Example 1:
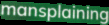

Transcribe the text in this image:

mansplaining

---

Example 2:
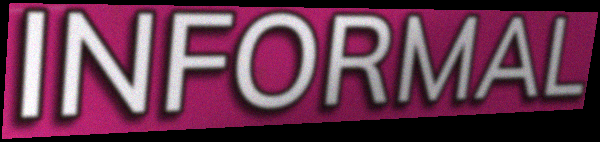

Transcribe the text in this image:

INFORMAL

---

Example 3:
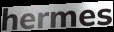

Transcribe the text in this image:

hermes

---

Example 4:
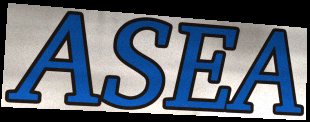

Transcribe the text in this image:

ASEA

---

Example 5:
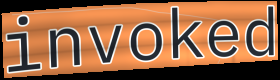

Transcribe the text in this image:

invoked